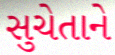
સુચેતાને